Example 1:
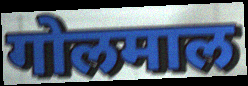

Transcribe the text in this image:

गोलमाल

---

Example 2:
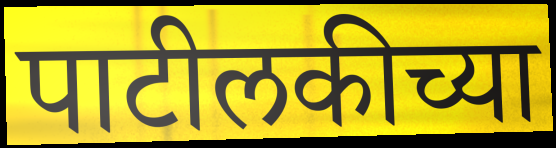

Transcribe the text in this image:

पाटीलकीच्या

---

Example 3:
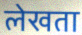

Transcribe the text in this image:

लेखता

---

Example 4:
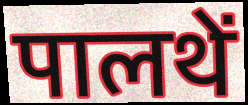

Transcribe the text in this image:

पालथें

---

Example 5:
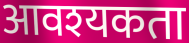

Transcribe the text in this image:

आवश्‍यकता